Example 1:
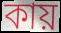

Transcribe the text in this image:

কায়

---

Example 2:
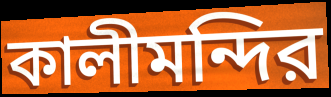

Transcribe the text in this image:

কালীমন্দির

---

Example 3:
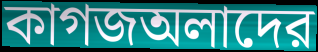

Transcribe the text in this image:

কাগজঅলাদের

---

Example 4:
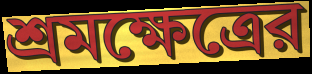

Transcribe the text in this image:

শ্রমক্ষেত্রের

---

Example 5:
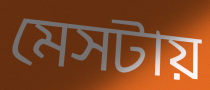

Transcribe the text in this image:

মেসটায়